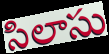
సిలాసు